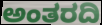
ಅಂತರದಿ